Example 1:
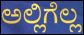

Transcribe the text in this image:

ಅಲ್ಲಿಗೆಲ್ಲ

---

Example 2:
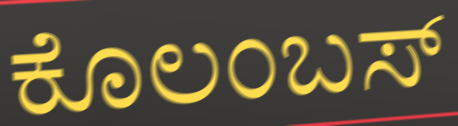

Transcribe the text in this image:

ಕೊಲಂಬಸ್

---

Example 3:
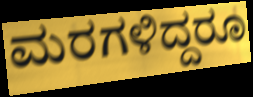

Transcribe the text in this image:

ಮರಗಳಿದ್ದರೂ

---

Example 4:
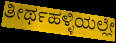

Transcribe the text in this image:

ತೀರ್ಥಹಳ್ಳಿಯಲ್ಲೇ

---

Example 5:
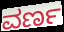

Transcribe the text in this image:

ವರ್ಣ